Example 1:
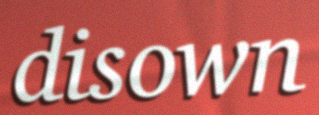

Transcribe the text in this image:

disown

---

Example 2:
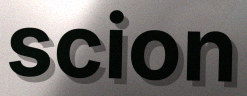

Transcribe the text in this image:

scion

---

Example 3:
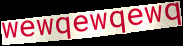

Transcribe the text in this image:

wewqewqewq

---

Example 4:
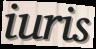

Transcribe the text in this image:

iuris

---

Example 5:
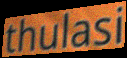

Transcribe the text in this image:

thulasi